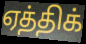
ஏத்திக்